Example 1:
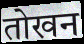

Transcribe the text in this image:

तोखन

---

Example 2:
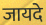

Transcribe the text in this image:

जायदे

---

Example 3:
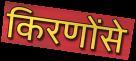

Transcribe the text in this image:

किरणोंसे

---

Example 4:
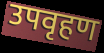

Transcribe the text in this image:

उपवृहण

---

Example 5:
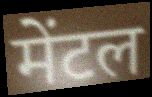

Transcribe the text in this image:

मेंटल